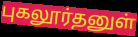
புகலூர்தனுள்